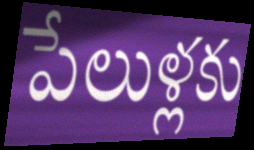
పేలుళ్లకు